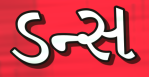
ડન્સ